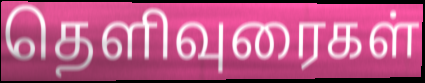
தெளிவுரைகள்